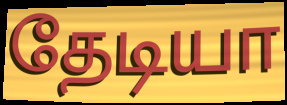
தேடியா